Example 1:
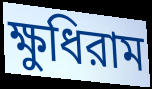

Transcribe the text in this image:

ক্ষুধিরাম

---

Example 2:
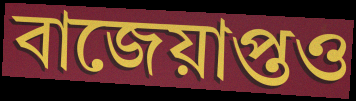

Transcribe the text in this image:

বাজেয়াপ্তও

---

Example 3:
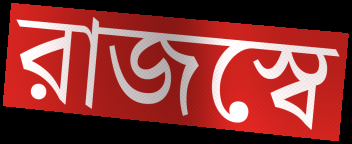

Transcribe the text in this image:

রাজস্বে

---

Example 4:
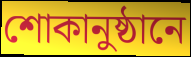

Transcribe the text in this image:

শোকানুষ্ঠানে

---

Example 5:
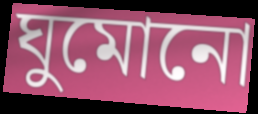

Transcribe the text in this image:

ঘুমোনো